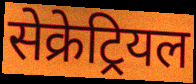
सेक्रेट्रियल